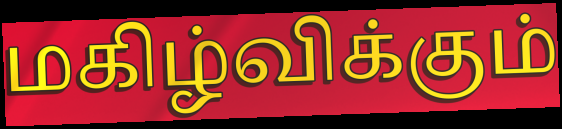
மகிழ்விக்கும்